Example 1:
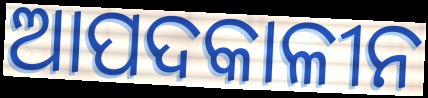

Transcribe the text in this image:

ଆପଦକାଳୀନ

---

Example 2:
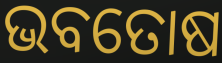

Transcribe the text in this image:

ଭବତୋଷ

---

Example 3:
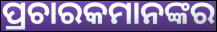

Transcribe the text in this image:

ପ୍ରଚାରକମାନଙ୍କର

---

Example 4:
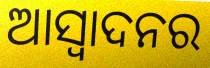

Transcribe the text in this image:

ଆସ୍ବାଦନର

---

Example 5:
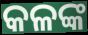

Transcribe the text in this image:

କଳଙ୍କ